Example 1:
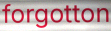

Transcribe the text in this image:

forgotton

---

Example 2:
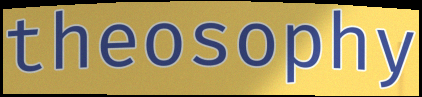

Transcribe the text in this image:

theosophy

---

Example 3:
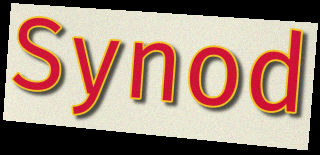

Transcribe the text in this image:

Synod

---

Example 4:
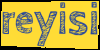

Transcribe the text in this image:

reyisi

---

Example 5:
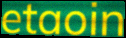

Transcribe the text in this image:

etaoin